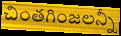
చింతగింజలన్నీ